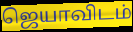
ஜெயாவிடம்